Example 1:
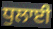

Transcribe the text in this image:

ਧੁਲਾਈ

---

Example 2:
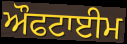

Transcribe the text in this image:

ਔਫਟਾਈਮ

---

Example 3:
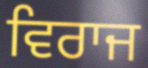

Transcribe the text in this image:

ਵਿਰਾਜ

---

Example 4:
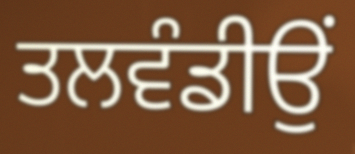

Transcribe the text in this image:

ਤਲਵੰਡੀਉਂ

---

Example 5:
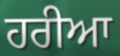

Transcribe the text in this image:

ਹਰੀਆ